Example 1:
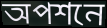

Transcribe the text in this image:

অপশনে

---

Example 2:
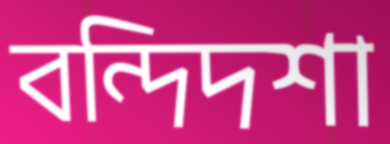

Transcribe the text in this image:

বন্দিদশা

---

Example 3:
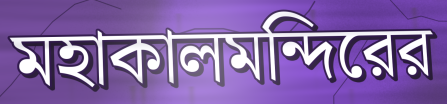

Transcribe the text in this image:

মহাকালমন্দিরের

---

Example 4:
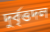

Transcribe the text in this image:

দুর্বৃত্তদল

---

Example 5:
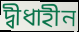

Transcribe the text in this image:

দ্বীধাহীন